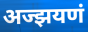
अज्झयणं